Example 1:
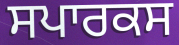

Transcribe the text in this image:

ਸਪਾਰਕਸ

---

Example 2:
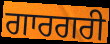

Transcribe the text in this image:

ਗਾਰਗਰੀ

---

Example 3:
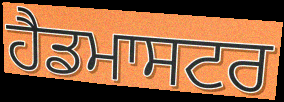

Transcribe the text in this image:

ਹੈਡਮਾਸਟਰ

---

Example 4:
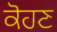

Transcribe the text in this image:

ਕੋਹਣ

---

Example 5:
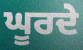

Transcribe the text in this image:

ਘੂਰਦੇ